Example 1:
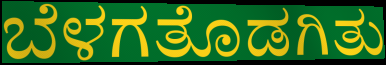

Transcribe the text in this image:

ಬೆಳಗತೊಡಗಿತು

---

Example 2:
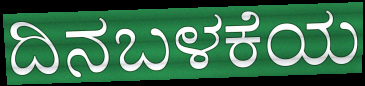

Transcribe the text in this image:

ದಿನಬಳಕೆಯ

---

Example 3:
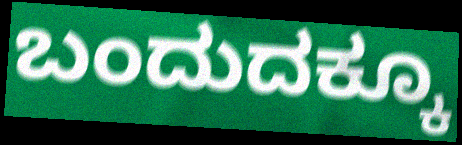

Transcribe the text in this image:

ಬಂದುದಕ್ಕೂ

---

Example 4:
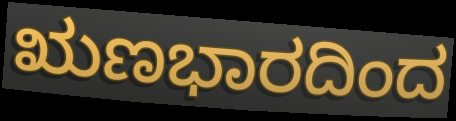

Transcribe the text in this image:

ಋಣಭಾರದಿಂದ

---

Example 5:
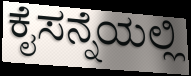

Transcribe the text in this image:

ಕೈಸನ್ನೆಯಲ್ಲಿ